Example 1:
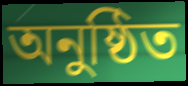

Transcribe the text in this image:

অনুষ্ঠিত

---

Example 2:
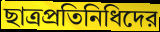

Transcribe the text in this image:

ছাত্রপ্রতিনিধিদের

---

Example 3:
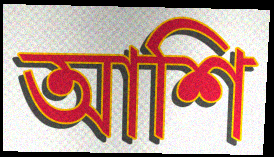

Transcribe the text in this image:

আশি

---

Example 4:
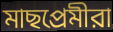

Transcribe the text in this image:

মাছপ্রেমীরা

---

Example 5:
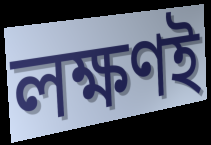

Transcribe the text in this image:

লক্ষণই